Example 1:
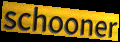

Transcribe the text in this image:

schooner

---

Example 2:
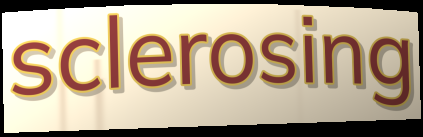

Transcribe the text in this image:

sclerosing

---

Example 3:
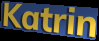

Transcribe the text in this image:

Katrin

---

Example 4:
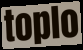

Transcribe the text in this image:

toplo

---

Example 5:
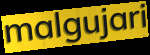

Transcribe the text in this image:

malgujari